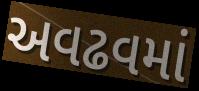
અવઢવમાં